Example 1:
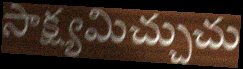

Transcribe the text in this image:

సాక్ష్యమిచ్చుచు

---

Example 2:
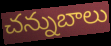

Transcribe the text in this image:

చన్నుబాలు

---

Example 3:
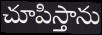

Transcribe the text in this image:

చూపిస్తాను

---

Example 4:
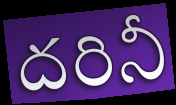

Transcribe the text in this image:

దరినీ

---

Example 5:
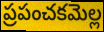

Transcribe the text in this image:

ప్రపంచకమెల్ల